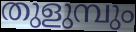
തുളുമ്പും